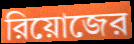
রিয়োজের